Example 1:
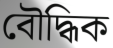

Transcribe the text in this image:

বৌদ্ধিক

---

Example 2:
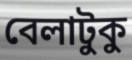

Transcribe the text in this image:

বেলাটুকু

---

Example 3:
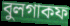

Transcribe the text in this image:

বুলগাকফ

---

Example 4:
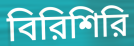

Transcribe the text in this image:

বিরিশিরি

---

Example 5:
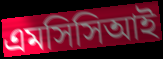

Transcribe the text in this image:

এমসিসিআই